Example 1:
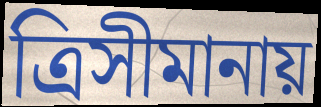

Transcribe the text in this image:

ত্রিসীমানায়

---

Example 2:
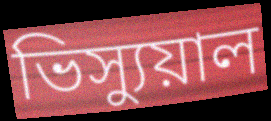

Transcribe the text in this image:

ভিস্যুয়াল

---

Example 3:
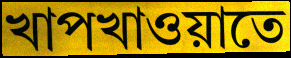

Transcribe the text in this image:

খাপখাওয়াতে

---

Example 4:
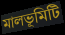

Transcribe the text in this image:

মালভূমিটি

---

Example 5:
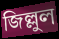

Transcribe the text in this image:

জিল্লুল